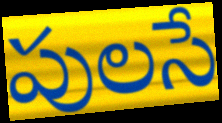
పులసే